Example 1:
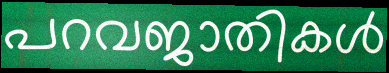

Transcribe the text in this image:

പറവജാതികൾ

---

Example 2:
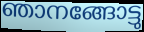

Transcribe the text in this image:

ഞാനങ്ങോട്ടു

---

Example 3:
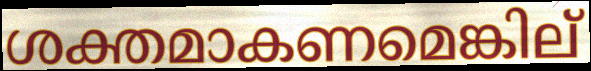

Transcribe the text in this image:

ശക്തമാകണമെങ്കില്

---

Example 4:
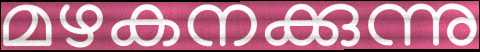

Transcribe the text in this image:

മഴകനക്കുന്നു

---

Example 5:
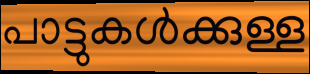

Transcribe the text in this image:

പാട്ടുകൾക്കുള്ള